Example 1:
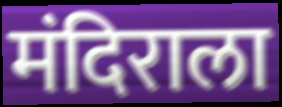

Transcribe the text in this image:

मंदिराला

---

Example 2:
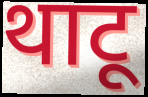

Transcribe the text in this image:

थाटू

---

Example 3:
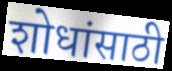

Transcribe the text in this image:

शोधांसाठी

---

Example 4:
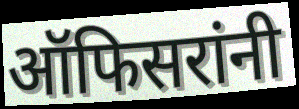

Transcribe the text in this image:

ऑफिसरांनी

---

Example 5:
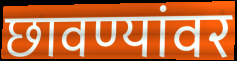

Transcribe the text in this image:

छावण्यांवर